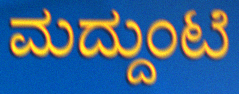
ಮದ್ದುಂಟೆ